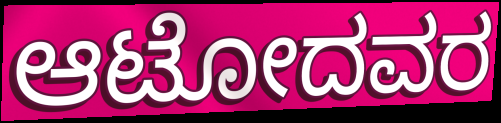
ಆಟೋದವರ